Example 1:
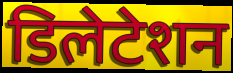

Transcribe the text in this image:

डिलेटेशन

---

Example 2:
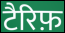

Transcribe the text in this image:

टैरिफ़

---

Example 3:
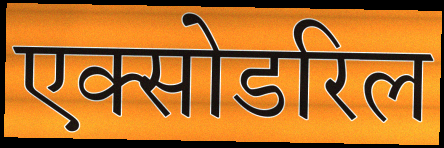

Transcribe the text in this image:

एक्सोडरिल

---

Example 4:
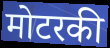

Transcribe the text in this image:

मोटरकी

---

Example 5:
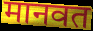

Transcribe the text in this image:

मानवत